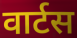
वार्टस